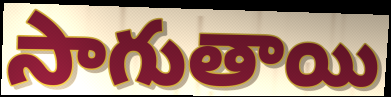
సాగుతాయి